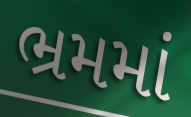
ભ્રમમાં